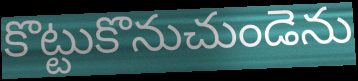
కొట్టుకొనుచుండెను